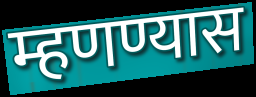
म्हणण्यास